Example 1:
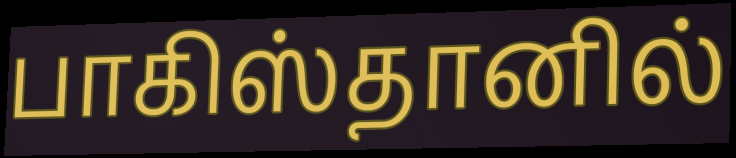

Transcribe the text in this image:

பாகிஸ்தானில்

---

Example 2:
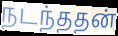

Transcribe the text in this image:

நடந்ததன்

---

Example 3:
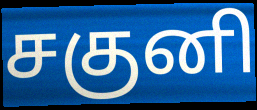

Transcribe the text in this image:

சகுனி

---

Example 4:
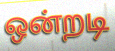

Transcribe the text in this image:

ஒன்றடி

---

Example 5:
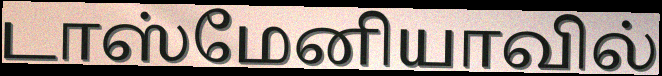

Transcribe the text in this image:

டாஸ்மேனியாவில்